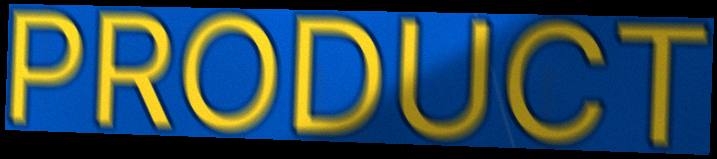
PRODUCT